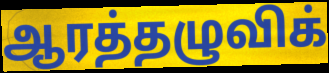
ஆரத்தழுவிக்